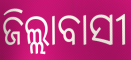
ଜିଲ୍ଲାବାସୀ